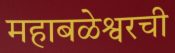
महाबळेश्वरची